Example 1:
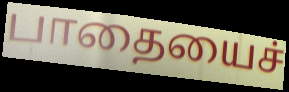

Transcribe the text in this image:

பாதையைச்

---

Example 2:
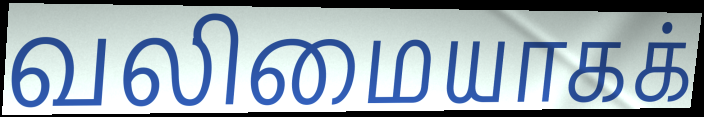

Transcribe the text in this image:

வலிமையாகக்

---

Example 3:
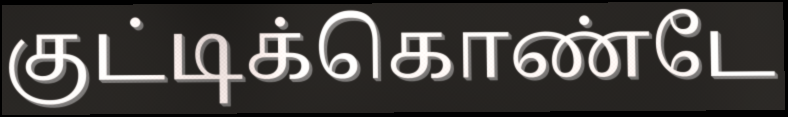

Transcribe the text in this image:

குட்டிக்கொண்டே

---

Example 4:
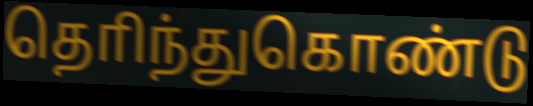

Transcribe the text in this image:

தெரிந்துகொண்டு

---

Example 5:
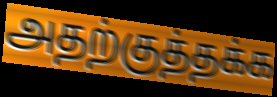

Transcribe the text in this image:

அதற்குத்தக்க